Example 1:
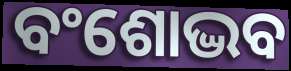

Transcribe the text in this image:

ବଂଶୋଦ୍ଭବ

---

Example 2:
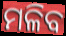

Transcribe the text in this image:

ମଳିବ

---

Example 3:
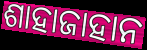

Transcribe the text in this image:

ଶାହାଜାହାନ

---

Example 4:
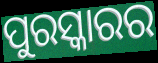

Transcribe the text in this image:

ପୁରସ୍କାରର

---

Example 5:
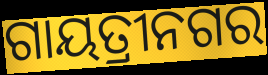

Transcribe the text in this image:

ଗାୟତ୍ରୀନଗର